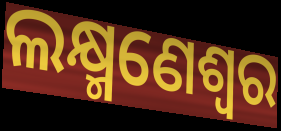
ଲକ୍ଷ୍ମଣେଶ୍ୱର